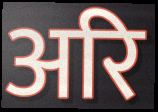
अरि